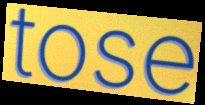
tose